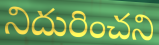
నిదురించని